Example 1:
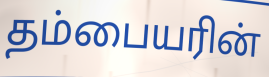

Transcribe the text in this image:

தம்பையரின்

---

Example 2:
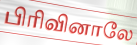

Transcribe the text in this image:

பிரிவினாலே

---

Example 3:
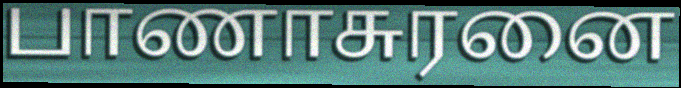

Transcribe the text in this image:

பாணாசுரனை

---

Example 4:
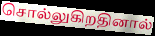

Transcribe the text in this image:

சொல்லுகிறதினால்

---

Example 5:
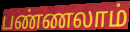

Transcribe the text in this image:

பண்ணலாம்